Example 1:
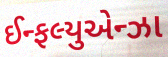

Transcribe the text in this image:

ઈન્ફલ્યુએન્ઝા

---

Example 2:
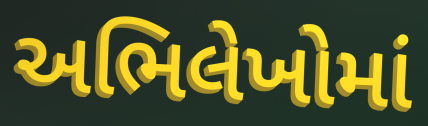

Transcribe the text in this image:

અભિલેખોમાં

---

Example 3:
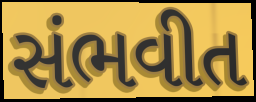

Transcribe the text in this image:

સંભવીત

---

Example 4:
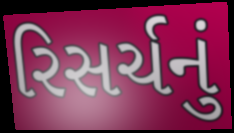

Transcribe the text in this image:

રિસર્ચનું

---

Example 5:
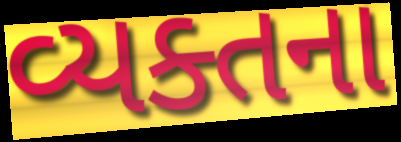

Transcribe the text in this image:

વ્યક્તના